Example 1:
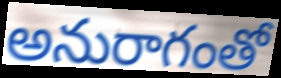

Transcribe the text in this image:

అనురాగంతో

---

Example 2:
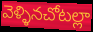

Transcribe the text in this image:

వెళ్ళినచోటల్లా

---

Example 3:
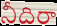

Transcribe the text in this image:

నీదిరా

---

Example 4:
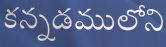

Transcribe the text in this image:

కన్నడములోని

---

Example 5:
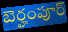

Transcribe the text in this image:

బెర్హంపూర్